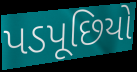
પડપૂછિયો